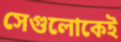
সেগুলোকেই